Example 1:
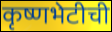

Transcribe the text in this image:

कृष्णभेटीची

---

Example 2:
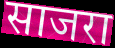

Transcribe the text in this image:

साजरा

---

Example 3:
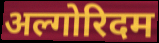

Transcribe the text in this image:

अल्गोरिदम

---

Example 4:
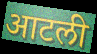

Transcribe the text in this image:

आटली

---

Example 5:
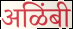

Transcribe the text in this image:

अळिंबी